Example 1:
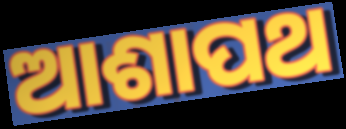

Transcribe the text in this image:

ଆଶାପଥ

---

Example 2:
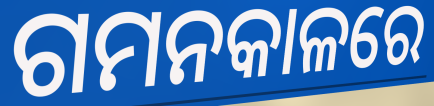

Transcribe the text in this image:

ଗମନକାଳରେ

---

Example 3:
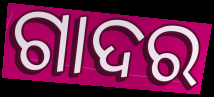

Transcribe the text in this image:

ଗାଦର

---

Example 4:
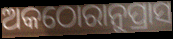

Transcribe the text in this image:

ଅକଠୋରାନୁପ୍ରାସ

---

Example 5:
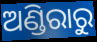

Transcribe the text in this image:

ଅଣ୍ଡିରାରୁ